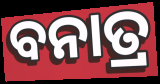
ବନାତ୍ର